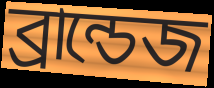
ব্রান্ডেজ